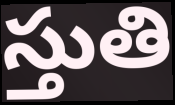
స్తుతి